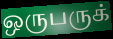
ஒருபருக்